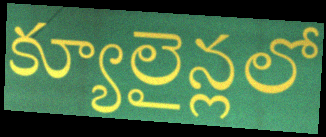
క్యూలైన్లలో